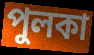
পুলকা